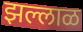
झल्लाळ